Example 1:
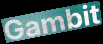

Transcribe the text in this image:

Gambit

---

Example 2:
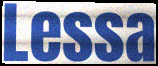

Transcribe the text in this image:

Lessa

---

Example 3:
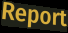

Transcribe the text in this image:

Report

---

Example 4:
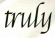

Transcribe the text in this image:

truly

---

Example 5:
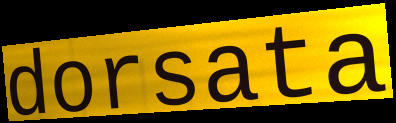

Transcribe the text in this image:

dorsata